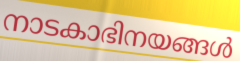
നാടകാഭിനയങ്ങൾ